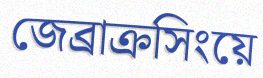
জেব্রাক্রসিংয়ে